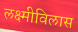
लक्ष्मीविलास